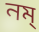
নম্